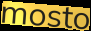
mosto